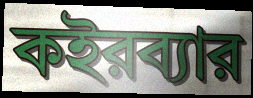
কইরব্যার